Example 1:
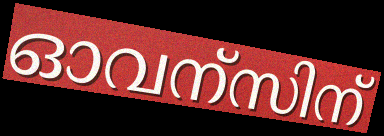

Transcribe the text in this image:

ഓവന്സിന്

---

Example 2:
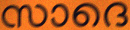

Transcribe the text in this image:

സാദെ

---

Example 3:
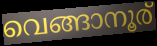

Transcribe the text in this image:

വെങ്ങാനൂര്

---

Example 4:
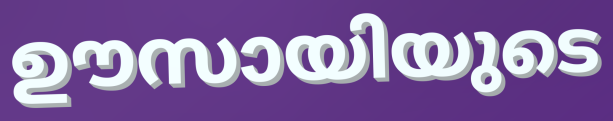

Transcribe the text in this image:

ഊസായിയുടെ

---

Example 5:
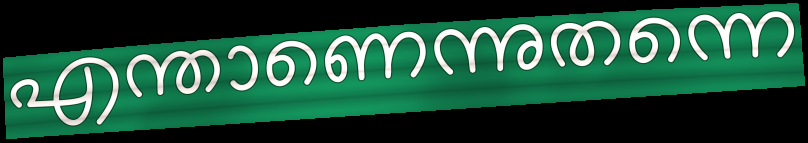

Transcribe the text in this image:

എന്താണെന്നുതന്നെ